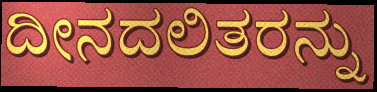
ದೀನದಲಿತರನ್ನು